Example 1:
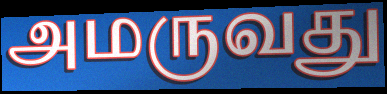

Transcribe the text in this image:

அமருவது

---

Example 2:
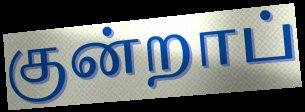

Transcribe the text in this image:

குன்றாப்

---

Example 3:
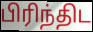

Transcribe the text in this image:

பிரிந்திட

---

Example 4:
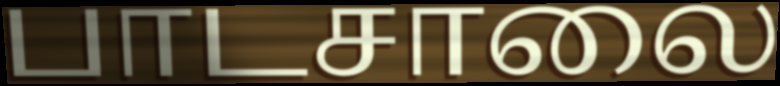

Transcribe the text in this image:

பாடசாலை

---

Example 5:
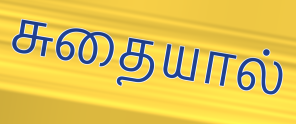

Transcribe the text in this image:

சுதையால்